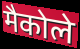
मैकोले